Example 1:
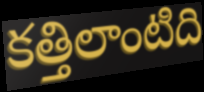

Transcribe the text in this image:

కత్తిలాంటిది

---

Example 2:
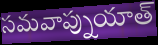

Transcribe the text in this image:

సమవాప్నుయాత్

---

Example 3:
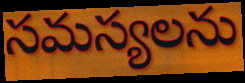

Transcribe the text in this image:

సమస్యలను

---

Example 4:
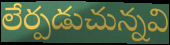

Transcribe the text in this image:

లేర్పడుచున్నవి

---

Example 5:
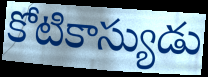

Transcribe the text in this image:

కోటికాస్యుడు